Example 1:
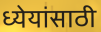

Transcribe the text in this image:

ध्येयांसाठी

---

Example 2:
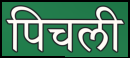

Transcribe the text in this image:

पिचली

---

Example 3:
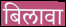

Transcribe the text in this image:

बिलावा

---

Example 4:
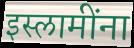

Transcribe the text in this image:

इस्लामींना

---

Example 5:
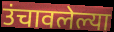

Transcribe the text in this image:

उंचावलेल्या